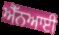
ਐੱਨਆਈ